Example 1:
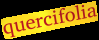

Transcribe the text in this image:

quercifolia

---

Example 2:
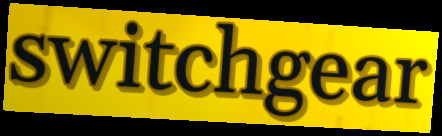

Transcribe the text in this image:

switchgear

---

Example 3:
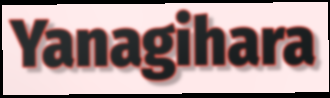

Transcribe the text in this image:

Yanagihara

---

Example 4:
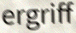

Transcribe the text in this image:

ergriff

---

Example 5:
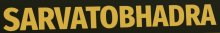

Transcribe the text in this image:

SARVATOBHADRA